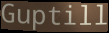
Guptill